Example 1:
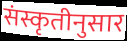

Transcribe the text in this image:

संस्कृतीनुसार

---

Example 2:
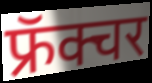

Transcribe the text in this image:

फ्रॅक्चर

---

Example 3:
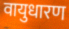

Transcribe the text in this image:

वायुधारण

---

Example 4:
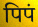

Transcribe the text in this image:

पिपं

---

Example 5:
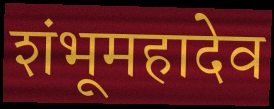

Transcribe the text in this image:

शंभूमहादेव